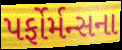
પર્ફોર્મન્સના